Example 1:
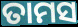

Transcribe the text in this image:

ତାମସ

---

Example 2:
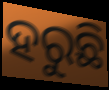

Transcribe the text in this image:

ହରୁଛି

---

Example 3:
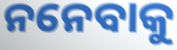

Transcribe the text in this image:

ନନେବାକୁ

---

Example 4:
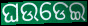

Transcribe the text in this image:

ଘଉଡେଇ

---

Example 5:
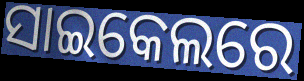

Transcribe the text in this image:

ସାଇକେଲରେ